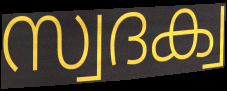
സ്വദക്വ